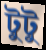
টুটু